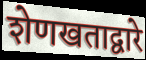
शेणखताद्वारे